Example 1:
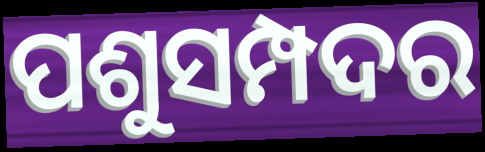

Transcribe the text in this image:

ପଶୁସମ୍ପଦର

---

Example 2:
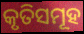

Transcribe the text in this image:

କୃତିସମୂହ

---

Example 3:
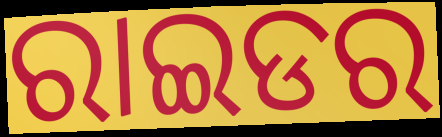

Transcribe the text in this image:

ରାଇଡର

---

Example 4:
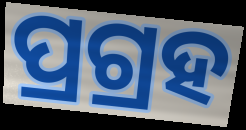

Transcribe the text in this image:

ପ୍ରଗ୍ରହ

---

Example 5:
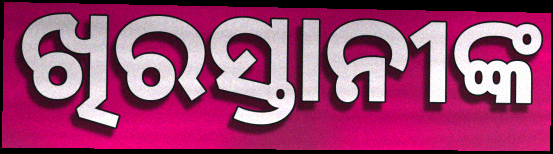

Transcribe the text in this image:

ଖିରସ୍ତାନୀଙ୍କ